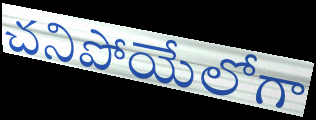
చనిపోయేలోగా